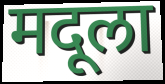
मदूला